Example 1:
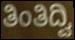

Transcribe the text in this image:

ತಿಂತಿದ್ವಿ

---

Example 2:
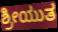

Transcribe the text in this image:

ಶ್ರೀಯುತ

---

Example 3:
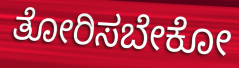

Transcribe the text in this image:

ತೋರಿಸಬೇಕೋ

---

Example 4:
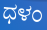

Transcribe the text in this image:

ಧಳಂ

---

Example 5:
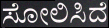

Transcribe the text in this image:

ಸೋಲಿಸಿದೆ